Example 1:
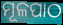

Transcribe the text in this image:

ମୂଳପାଠ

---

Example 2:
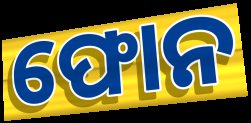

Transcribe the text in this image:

ଫୋନ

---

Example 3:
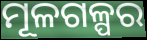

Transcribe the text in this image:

ମୂଳଗଳ୍ପର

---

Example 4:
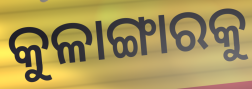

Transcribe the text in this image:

କୁଳାଙ୍ଗାରକୁ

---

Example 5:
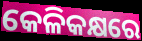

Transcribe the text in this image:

କେଳିକକ୍ଷରେ